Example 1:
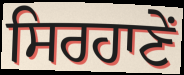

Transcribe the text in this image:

ਸਿਰਹਾਣੇਂ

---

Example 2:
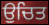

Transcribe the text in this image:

ਉਚਿਤ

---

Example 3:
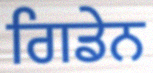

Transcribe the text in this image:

ਗਿਡੇਨ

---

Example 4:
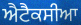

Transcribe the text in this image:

ਐਟੈਕਸੀਆ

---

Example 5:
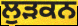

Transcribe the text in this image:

ਲੁੜਕਨ